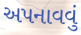
અપનાવવું